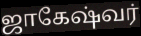
ஜாகேஷ்வர்